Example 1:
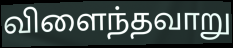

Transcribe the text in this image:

விளைந்தவாறு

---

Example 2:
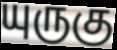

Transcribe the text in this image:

யுருகு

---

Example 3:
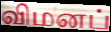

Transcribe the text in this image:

விமனப்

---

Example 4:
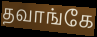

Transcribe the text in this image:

தவாங்கே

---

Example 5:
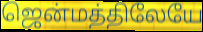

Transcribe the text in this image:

ஜென்மத்திலேயே